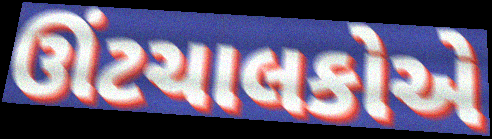
ઊંટચાલકોએ